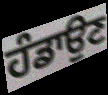
ਹੰਡਾਉਣ